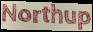
Northup